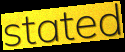
stated